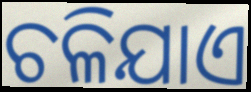
ଚଳିଯାଏ